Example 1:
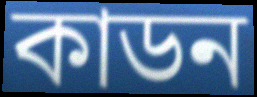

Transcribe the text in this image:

কাডন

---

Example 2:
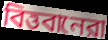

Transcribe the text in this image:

বিত্তবানেরা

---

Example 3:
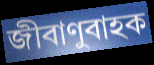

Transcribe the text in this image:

জীবাণুবাহক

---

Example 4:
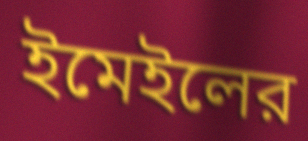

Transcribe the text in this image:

ইমেইলের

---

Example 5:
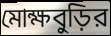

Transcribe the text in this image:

মোক্ষবুড়ির